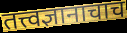
तत्त्वज्ञानाचाच